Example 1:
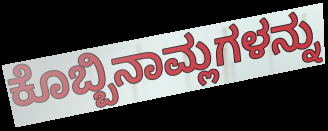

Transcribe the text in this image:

ಕೊಬ್ಬಿನಾಮ್ಲಗಳನ್ನು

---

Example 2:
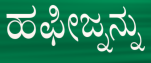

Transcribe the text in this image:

ಹಫೀಜ್ನನ್ನು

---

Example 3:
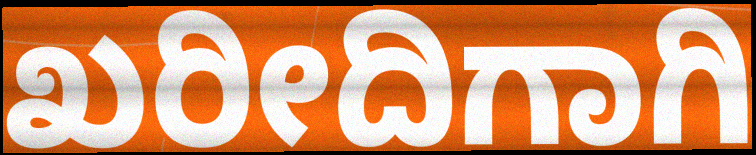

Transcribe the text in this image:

ಖರೀದಿಗಾಗಿ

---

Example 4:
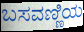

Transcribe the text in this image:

ಬಸವಣ್ಣಿಯ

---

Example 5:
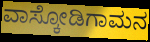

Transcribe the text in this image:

ವಾಸ್ಕೋಡಿಗಾಮನ